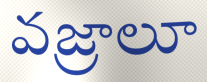
వజ్రాలూ